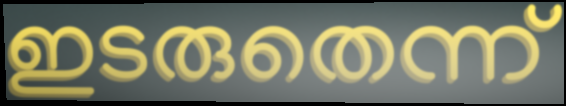
ഇടരുതെന്ന്